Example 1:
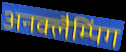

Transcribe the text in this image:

अनक्लैम्पिंग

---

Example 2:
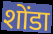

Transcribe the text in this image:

शोंडा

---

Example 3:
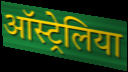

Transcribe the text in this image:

ऑस्‍ट्रेलिया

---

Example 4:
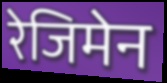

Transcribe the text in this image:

रेजिमेन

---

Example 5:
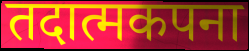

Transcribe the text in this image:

तदात्मकपना